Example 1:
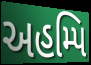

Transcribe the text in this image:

અહમ્પિ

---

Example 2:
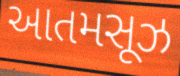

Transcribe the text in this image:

આતમસૂઝ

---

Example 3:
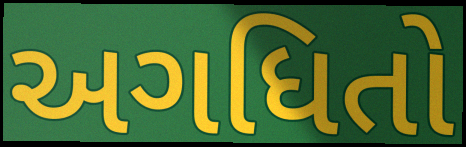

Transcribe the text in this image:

અગધિતો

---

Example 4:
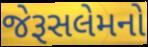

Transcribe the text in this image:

જેરૂસલેમનો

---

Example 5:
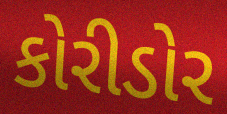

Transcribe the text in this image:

કોરીડોર